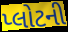
પ્લોટની